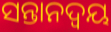
ସନ୍ତାନଦ୍ୱୟ